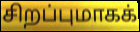
சிறப்புமாகக்